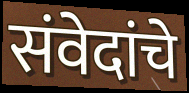
संवेदांचे